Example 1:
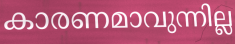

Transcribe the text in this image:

കാരണമാവുന്നില്ല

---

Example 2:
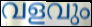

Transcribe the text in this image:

വളവും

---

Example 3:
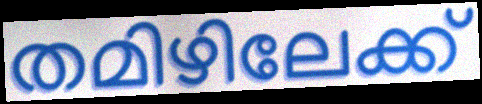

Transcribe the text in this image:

തമിഴിലേക്ക്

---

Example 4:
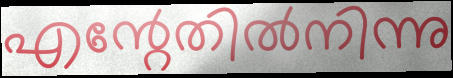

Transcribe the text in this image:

എന്റേതിൽനിന്നു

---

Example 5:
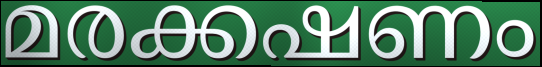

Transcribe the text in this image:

മരക്കഷണം